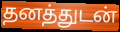
தனத்துடன்